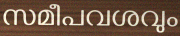
സമീപവശവും